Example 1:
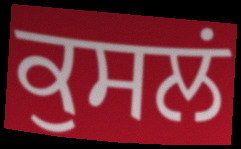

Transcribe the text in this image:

ਕੁਸਲਂ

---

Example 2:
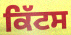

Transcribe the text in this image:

ਕਿੱਟਸ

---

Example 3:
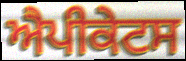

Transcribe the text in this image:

ਐਪੀਕੇਟਸ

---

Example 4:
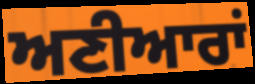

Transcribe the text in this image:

ਅਣੀਆਰਾਂ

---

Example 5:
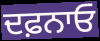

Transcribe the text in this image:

ਦਫ਼ਨਾਓ